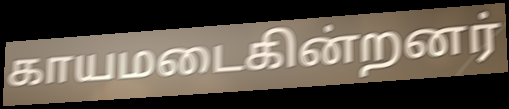
காயமடைகின்றனர்